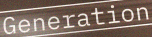
Generation